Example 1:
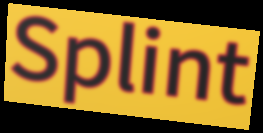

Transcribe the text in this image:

Splint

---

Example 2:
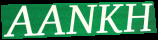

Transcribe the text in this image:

AANKH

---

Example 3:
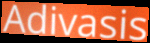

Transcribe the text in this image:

Adivasis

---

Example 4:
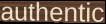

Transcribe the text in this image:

authentic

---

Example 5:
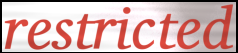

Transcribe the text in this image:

restricted